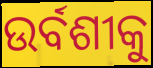
ଉର୍ବଶୀକୁ